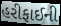
હરીફાઈની